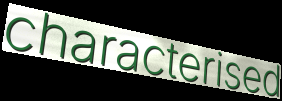
characterised